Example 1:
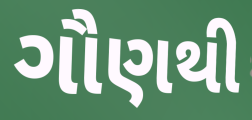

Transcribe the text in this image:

ગૌણથી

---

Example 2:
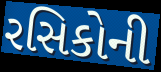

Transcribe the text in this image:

રસિકોની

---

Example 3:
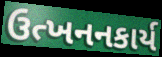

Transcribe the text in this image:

ઉત્ખનનકાર્ય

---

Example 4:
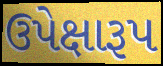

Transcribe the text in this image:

ઉપેક્ષારૂપ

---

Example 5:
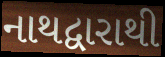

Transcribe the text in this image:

નાથદ્વારાથી